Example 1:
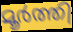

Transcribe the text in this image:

മൂർത്തി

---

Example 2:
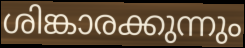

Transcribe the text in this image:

ശിങ്കാരക്കുന്നും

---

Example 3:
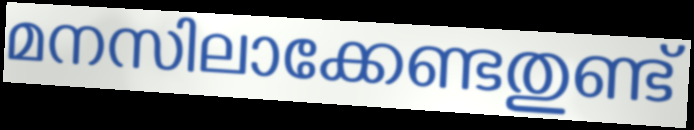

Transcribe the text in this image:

മനസിലാക്കേണ്ടതുണ്ട്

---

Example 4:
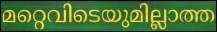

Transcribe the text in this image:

മറ്റെവിടെയുമില്ലാത്ത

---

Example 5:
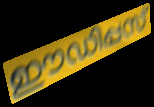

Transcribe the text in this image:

ഈഡിപ്പസ്